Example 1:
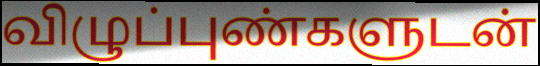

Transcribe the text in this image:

விழுப்புண்களுடன்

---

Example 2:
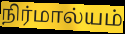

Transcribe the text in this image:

நிர்மால்யம்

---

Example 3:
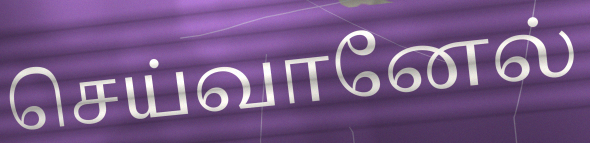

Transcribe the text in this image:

செய்வானேல்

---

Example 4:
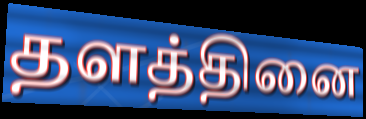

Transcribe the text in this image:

தளத்தினை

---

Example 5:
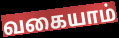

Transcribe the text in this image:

வகையாம்